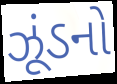
ઝૂંડનો